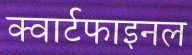
क्वार्टफाइनल